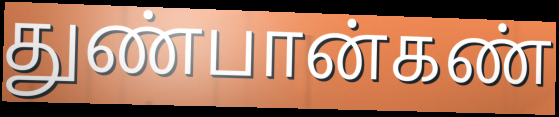
துண்பான்கண்